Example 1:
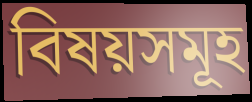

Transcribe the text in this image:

বিষয়সমূহ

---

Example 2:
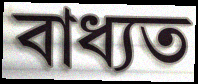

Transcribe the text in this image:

বাধ্যত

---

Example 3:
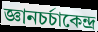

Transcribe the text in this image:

জ্ঞানচর্চাকেন্দ্র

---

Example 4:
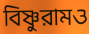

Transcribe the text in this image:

বিষ্ণুরামও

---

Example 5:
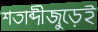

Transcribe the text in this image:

শতাব্দীজুড়েই